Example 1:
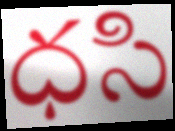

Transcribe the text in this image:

ధసి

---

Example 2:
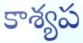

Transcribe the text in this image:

కాశ్యప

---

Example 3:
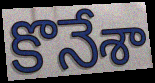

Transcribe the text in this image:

కొనేశా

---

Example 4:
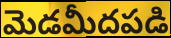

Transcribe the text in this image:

మెడమీదపడి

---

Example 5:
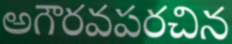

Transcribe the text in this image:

అగౌరవపరచిన